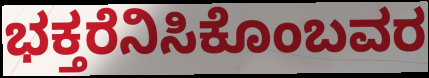
ಭಕ್ತರೆನಿಸಿಕೊಂಬವರ